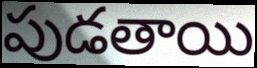
పుడతాయి